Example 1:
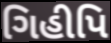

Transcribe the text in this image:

ગિહીપિ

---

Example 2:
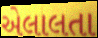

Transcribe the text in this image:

એલાલતા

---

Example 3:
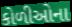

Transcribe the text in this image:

કોળીઓના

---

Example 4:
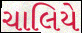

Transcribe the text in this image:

ચાલિયે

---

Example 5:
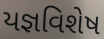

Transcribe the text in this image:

યજ્ઞવિશેષ